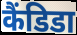
कैंडिडा